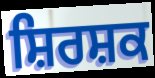
ਸ਼ਿਰਸ਼ਕ